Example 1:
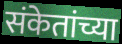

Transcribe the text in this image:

संकेतांच्या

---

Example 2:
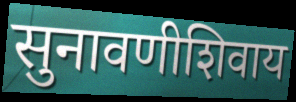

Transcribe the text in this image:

सुनावणीशिवाय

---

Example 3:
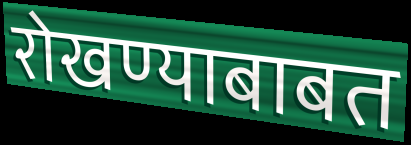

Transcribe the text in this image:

रोखण्याबाबत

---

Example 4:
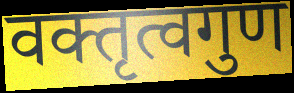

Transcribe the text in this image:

वक्तृत्वगुण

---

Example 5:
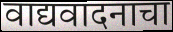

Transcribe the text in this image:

वाद्यवादनाचा